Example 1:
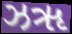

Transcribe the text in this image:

ઝૠ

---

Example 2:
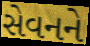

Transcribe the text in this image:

સેવનને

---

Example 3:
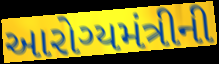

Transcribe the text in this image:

આરોગ્યમંત્રીની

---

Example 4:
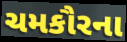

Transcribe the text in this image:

ચમકૌરના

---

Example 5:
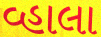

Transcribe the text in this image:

વ્હાલા